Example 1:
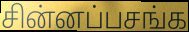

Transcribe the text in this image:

சின்னப்பசங்க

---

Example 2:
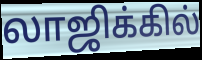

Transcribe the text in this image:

லாஜிக்கில்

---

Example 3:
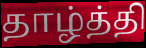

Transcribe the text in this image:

தாழ்த்தி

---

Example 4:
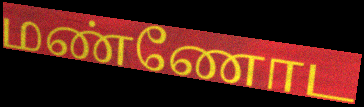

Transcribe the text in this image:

மண்ணோட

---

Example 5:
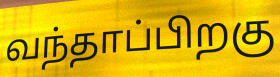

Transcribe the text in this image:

வந்தாப்பிறகு